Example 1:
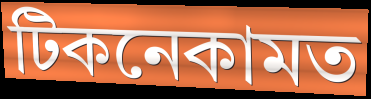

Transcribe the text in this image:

টিকনেকামত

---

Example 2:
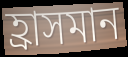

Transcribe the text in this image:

হ্ৰাসমান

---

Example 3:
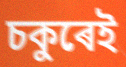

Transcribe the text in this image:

চকুৰেই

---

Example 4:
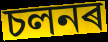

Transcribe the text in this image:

চলনৰ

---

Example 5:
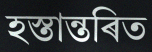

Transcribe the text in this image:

হস্তান্তৰিত